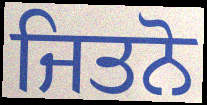
ਜਿਤਨੋ